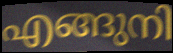
എങ്ങുനി